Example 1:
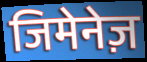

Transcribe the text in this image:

जिमेनेज़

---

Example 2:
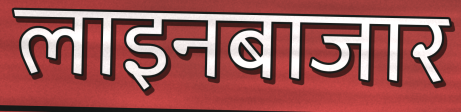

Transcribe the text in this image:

लाइनबाजार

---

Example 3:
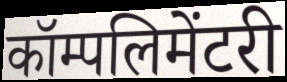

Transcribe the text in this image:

कॉम्पलिमेंटरी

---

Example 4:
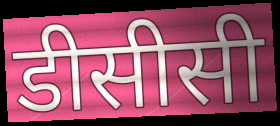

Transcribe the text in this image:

डीसीसी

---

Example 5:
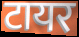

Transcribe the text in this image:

टायर